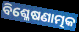
ବିଶ୍ଳେଷଣାତ୍ମକ